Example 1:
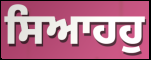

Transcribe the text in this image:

ਸਿਆਹਹੁ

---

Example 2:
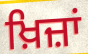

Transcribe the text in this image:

ਖ਼ਿਜ਼ਾਂ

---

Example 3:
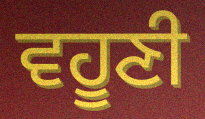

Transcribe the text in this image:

ਵਹੂਣੀ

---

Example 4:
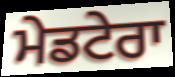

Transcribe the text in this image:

ਮੇਡਟੇਰਾ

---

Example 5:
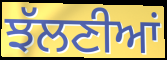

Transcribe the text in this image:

ਝੱਲਣੀਆਂ